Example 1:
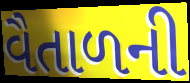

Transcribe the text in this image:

વૈતાળની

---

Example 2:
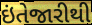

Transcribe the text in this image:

ઇંતેજારીથી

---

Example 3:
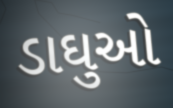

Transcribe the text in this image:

ડાઘુઓ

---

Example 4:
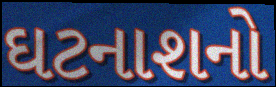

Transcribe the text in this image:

ઘટનાશનો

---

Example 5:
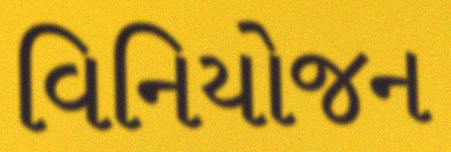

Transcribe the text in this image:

વિનિયોજન